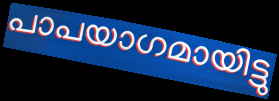
പാപയാഗമായിട്ടു